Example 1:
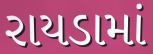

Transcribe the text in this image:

રાયડામાં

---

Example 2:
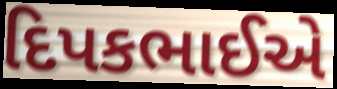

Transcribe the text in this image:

દિપકભાઈએ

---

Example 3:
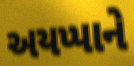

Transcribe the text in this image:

અયપ્પાને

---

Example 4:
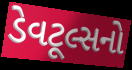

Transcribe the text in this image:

ડેવટૂલ્સનો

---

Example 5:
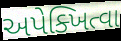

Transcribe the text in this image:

અપેક્ખિત્વા